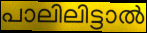
പാലിലിട്ടാൽ